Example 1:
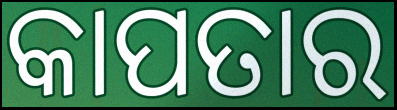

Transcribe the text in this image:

କାପତାର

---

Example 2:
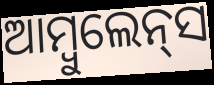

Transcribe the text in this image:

ଆମ୍ବୁଲେନ୍‍ସ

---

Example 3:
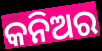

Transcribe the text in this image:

କନିଅର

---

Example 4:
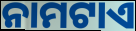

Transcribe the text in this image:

ନାମଟାଏ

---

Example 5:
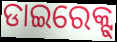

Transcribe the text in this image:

ଡାଇରେକ୍ଟ୍